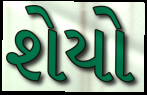
શેયો